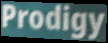
Prodigy